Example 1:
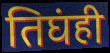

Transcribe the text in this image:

तिघंही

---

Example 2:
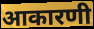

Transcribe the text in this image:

आकारणी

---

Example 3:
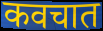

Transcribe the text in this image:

कवचात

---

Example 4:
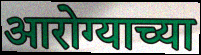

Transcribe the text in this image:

आरोग्याच्या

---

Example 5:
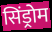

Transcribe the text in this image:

सिंड्रोम